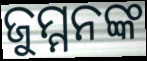
ଜୁମ୍ମନଙ୍କ